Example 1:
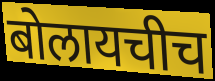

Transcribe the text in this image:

बोलायचीच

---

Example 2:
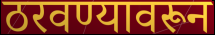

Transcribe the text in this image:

ठरवण्यावरून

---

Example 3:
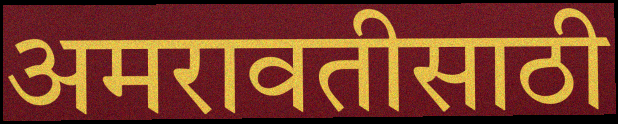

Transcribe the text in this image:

अमरावतीसाठी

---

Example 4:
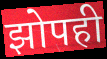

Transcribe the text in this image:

झोपही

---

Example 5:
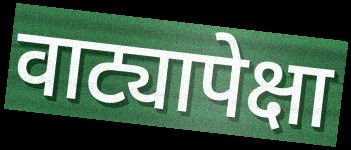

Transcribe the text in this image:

वाट्यापेक्षा